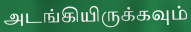
அடங்கியிருக்கவும்